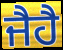
ਜੈਹੈ